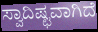
ಸ್ವಾದಿಷ್ಟವಾಗಿದೆ